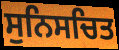
ਸੁਨਿਸਚਿਤ